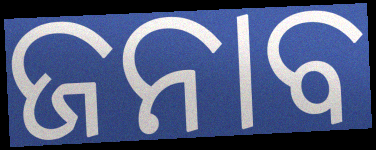
ଜନାବ